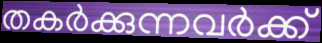
തകർക്കുന്നവർക്ക്